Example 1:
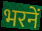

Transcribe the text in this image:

भरनें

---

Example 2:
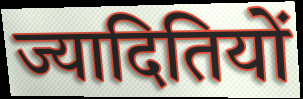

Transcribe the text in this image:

ज्यादितियों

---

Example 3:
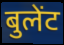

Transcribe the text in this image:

बुलेंट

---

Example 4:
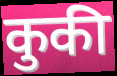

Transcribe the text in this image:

कुकी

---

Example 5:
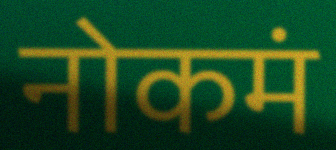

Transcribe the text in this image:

नोकमं